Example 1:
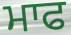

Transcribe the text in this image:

ਮਾਫ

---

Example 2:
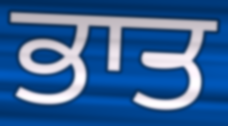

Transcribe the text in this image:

ਭਾਤ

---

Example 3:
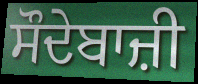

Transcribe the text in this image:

ਸੌਦੇਬਾਜ਼ੀ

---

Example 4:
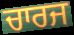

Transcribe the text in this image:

ਚਾਰਜ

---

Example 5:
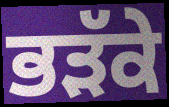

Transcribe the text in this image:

ਭੜੱਕੇ